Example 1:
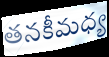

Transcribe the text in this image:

తనకీమధ్య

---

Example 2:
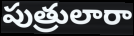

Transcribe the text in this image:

పుత్రులారా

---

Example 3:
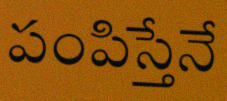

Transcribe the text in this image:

పంపిస్తేనే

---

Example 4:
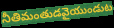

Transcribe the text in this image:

నీతిమంతుడవైయుండుట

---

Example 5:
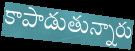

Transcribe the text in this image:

కాపాడుతున్నారు